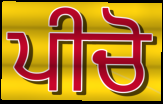
ਪੀਚੋ